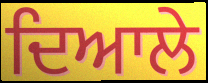
ਦਿਆਲੇ